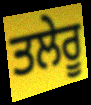
ਤਲੇਰੂ